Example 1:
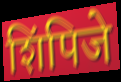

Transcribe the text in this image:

शिंपिजे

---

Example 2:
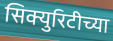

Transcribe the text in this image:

सिक्युरिटीच्या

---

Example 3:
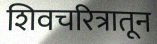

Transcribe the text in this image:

शिवचरित्रातून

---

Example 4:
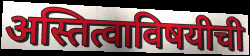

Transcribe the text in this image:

अस्तित्वाविषयीची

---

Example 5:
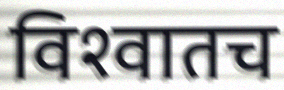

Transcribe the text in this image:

विश्वातच